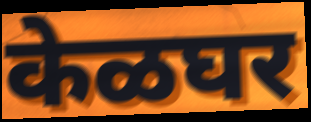
केळघर